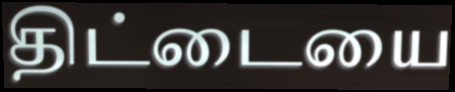
திட்டையை